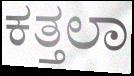
ಕತ್ತಲಾ